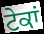
ਟੇਕਾਂ